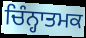
ਚਿੰਨ੍ਹਾਤਮਕ